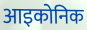
आइकोनिक